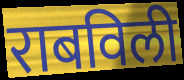
राबविली